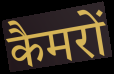
कैमरों